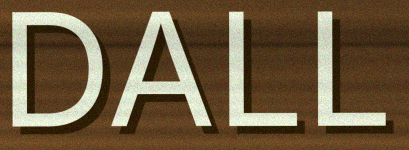
DALL